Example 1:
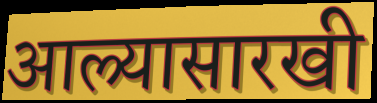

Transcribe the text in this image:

आल्यासारखी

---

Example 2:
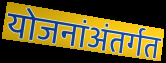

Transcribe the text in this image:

योजनांअंतर्गत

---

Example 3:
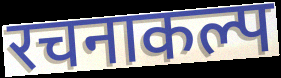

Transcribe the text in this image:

रचनाकल्प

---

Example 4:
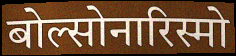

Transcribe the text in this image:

बोल्सोनारिस्मो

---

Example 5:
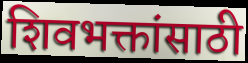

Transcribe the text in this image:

शिवभक्तांसाठी